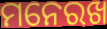
ମନେରଖ